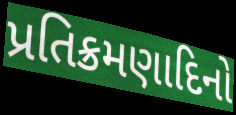
પ્રતિક્રમણાદિનો